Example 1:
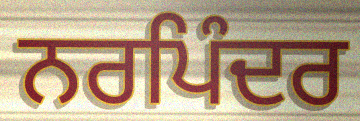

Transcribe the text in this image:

ਨਰਪਿੰਦਰ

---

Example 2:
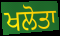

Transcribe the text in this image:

ਖਲੋਤਾ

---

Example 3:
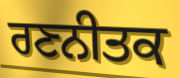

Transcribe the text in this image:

ਰਣਨੀਤਕ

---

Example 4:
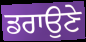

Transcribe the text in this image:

ਡਰਾਉਣੇ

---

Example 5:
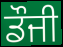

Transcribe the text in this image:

ਡੌਜੀ